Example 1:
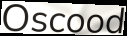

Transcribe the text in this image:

Oscood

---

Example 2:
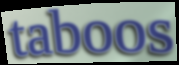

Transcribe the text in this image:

taboos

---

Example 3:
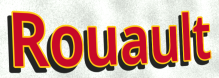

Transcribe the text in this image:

Rouault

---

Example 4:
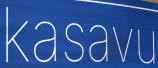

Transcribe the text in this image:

kasavu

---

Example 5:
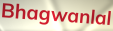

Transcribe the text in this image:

Bhagwanlal